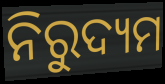
ନିରୁଦ୍ୟମ